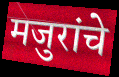
मजुरांचे